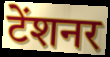
टेंशनर